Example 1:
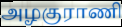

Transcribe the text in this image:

அழகுராணி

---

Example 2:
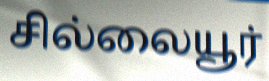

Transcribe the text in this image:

சில்லையூர்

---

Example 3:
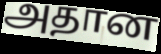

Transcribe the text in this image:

அதான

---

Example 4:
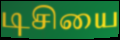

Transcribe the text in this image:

டிசியை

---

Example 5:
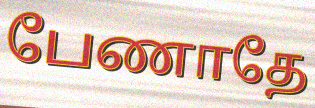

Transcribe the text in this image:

பேணாதே